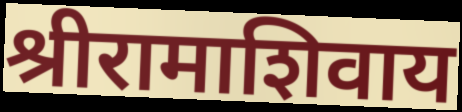
श्रीरामाशिवाय